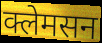
क्लेमसन